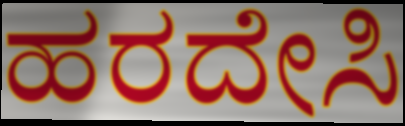
ಹರದೇಸಿ